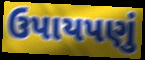
ઉપાયપણું